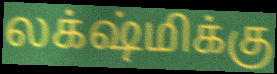
லக்‌ஷ்மிக்கு